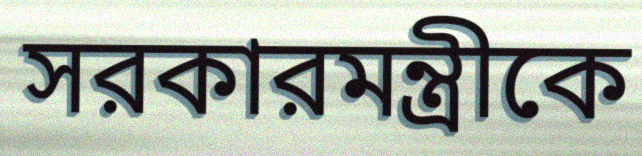
সরকারমন্ত্রীকে